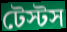
টেস্টস